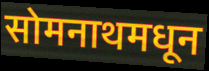
सोमनाथमधून